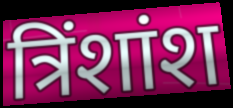
त्रिंशांश